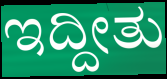
ಇದ್ದೀತು